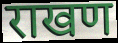
राखण